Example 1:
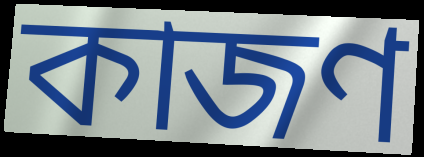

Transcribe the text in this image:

কাজণ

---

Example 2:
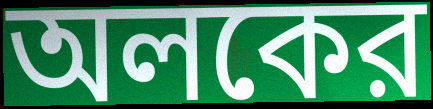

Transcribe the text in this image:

অলকের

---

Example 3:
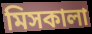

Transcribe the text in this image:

মিসকালা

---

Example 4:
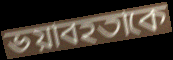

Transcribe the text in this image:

ভয়াবহতাকে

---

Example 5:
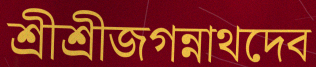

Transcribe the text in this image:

শ্রীশ্রীজগন্নাথদেব